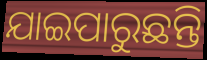
ଯାଇପାରୁଛନ୍ତି